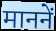
माननें